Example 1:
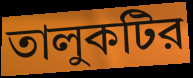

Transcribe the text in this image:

তালুকটির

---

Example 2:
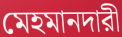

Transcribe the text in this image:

মেহমানদারী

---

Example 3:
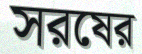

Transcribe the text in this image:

সরষের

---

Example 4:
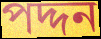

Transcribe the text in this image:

পদ্দন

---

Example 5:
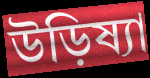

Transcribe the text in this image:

উড়িষ্যা